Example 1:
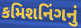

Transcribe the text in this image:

કમિશનિંગનું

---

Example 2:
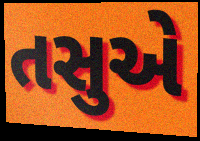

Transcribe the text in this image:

તસુએ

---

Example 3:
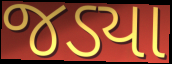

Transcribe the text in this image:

જડ્યા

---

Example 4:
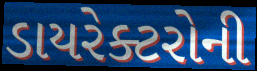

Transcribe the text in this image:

ડાયરેક્ટરોની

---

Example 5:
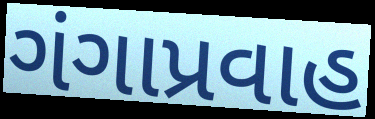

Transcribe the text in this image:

ગંગાપ્રવાહ